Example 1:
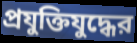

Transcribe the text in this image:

প্রযুক্তিযুদ্ধের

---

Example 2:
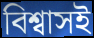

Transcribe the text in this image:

বিশ্বাসই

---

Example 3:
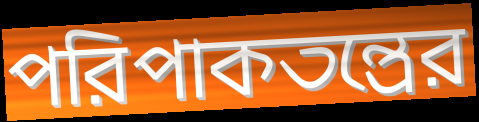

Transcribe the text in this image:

পরিপাকতন্ত্রের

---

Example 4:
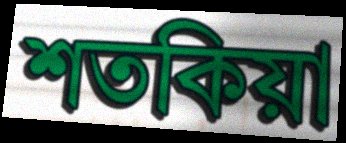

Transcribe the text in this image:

শতকিয়া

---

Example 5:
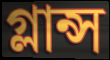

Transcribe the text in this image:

গ্লান্স